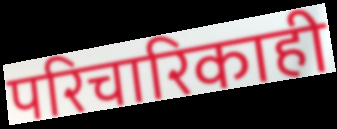
परिचारिकाही